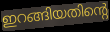
ഇറങ്ങിയതിന്റെ